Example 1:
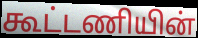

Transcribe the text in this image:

கூட்டணியின்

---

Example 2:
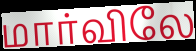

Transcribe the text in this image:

மார்விலே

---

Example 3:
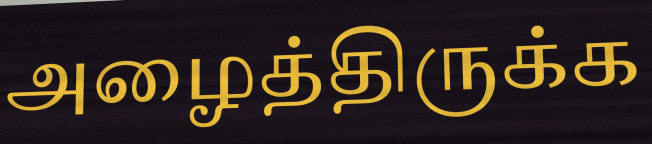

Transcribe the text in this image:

அழைத்திருக்க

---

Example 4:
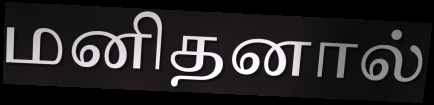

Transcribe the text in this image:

மனிதனால்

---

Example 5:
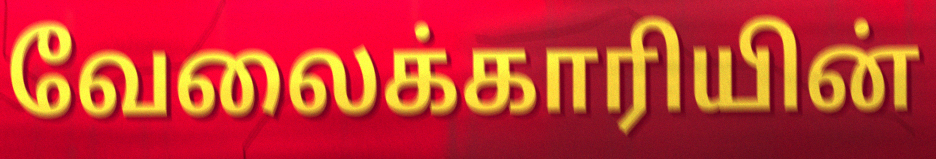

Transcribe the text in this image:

வேலைக்காரியின்